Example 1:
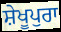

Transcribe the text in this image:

ਸ਼ੇਖੂਪੁਰਾ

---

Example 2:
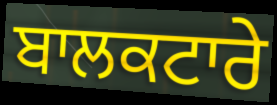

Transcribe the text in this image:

ਬਾਲਕਟਾਰੇ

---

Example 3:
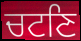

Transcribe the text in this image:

ਚਟਣਿ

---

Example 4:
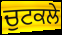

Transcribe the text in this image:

ਚੁਟਕਲੇ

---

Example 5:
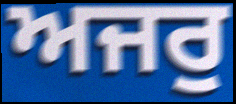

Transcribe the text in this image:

ਅਜਰੁ